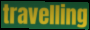
travelling